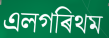
এলগৰিথম